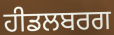
ਹੀਡਲਬਰਗ